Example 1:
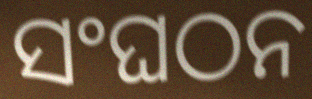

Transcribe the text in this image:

ସଂଘଠନ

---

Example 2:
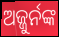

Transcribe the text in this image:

ଅଜ୍ଜୁର୍ନଙ୍କ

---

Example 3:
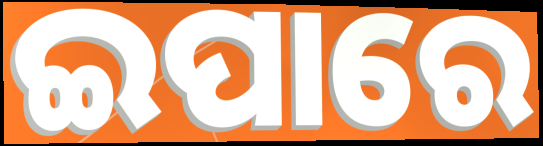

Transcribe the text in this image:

ଇପାରେ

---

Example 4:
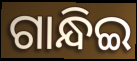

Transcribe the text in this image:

ଗାନ୍ଧିଇ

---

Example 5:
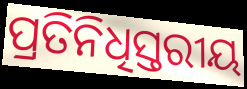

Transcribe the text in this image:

ପ୍ରତିନିଧିସ୍ତରୀୟ